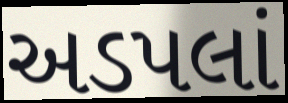
અડપલાં